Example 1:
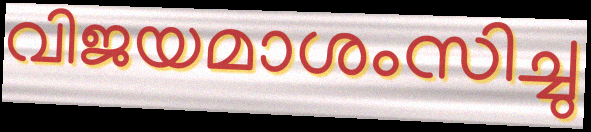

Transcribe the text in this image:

വിജയമാശംസിച്ചു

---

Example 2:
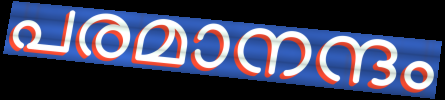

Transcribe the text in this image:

പരമാനന്ദം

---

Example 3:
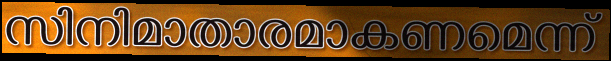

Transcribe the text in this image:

സിനിമാതാരമാകണമെന്ന്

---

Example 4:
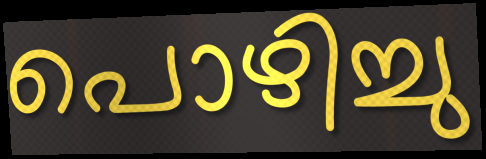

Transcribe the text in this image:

പൊഴിച്ചു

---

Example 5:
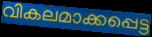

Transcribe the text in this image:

വികലമാക്കപ്പെട്ട